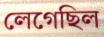
লেগেছিল